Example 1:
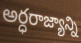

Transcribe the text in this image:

అర్ధరాజ్యాన్ని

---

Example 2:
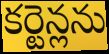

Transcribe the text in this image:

కర్టెన్లను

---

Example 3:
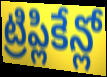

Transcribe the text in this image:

ట్రిప్లికేన్లో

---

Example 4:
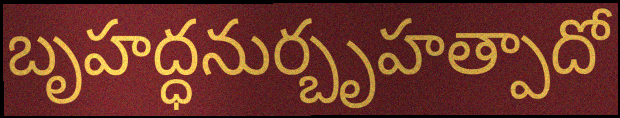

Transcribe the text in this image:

బృహద్ధనుర్బృహత్పాదో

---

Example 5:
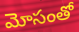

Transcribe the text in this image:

మోసంతో